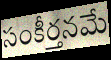
సంకీర్తనమే